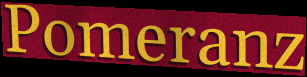
Pomeranz